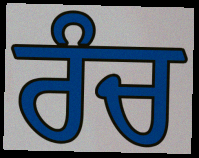
ਰੰਚ